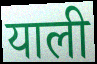
याली